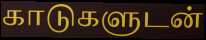
காடுகளுடன்